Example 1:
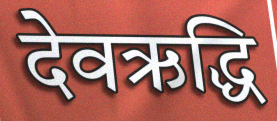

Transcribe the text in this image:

देवऋद्धि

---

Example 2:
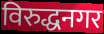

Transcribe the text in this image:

विरुद्धनगर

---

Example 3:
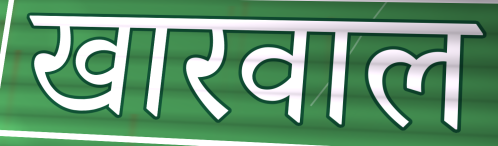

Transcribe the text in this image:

खारवाल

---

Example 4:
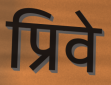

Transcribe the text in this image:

प्रिवे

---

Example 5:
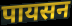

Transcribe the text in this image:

पायसन